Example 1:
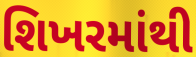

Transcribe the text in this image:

શિખરમાંથી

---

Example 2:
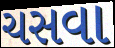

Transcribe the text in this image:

ચસવા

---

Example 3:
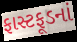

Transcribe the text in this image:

ફાસ્ટફૂડનાં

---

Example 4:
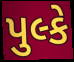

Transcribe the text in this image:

પુલ્કે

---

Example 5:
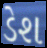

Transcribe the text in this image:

ડેશ